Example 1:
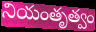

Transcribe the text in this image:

నియంతృత్వం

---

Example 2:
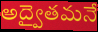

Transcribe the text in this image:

అద్వైతమనే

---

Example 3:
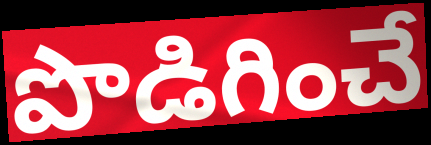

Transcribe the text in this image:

పొడిగించే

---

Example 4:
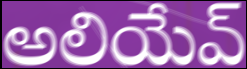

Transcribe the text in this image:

అలియేవ్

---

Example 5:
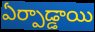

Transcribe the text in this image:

ఏర్పాడ్డాయి